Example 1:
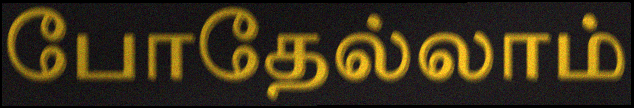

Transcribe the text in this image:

போதேல்லாம்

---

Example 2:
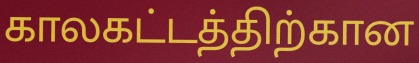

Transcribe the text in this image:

காலகட்டத்திற்கான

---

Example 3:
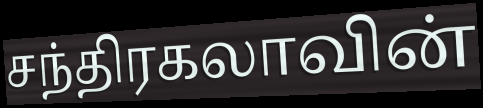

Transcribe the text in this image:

சந்திரகலாவின்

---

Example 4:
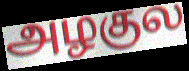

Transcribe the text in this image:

அழகுல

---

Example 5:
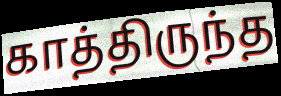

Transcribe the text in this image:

காத்திருந்த